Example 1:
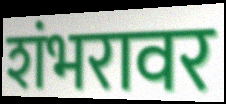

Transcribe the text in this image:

शंभरावर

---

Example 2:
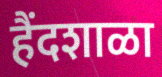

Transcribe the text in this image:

हैंदशाळा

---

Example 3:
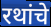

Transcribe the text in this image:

रथांचे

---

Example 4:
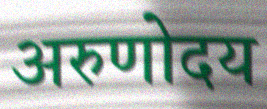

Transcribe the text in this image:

अरुणोदय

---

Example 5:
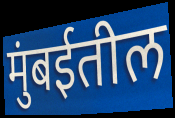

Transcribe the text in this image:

मुंबईतील